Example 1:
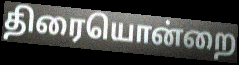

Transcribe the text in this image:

திரையொன்றை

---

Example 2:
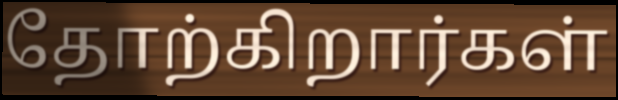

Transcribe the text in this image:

தோற்கிறார்கள்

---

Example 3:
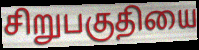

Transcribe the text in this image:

சிறுபகுதியை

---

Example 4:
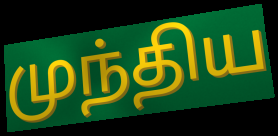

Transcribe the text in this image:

முந்திய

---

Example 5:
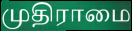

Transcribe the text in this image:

முதிராமை